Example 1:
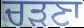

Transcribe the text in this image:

ਚੜਣਾ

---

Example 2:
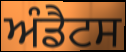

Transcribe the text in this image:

ਅੰਡੈਟਸ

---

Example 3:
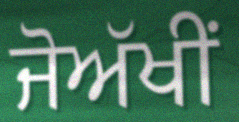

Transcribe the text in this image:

ਜੋਅੱਖੀਂ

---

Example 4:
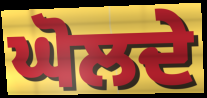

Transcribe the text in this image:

ਘੋਲਦੇ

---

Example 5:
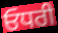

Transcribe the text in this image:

ਓਧਰੀ